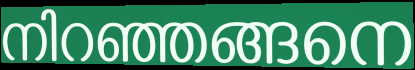
നിറഞ്ഞങ്ങനെ